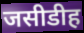
जसीडीह